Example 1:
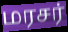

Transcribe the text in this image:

மரசர்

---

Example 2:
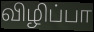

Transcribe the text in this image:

விழிப்பா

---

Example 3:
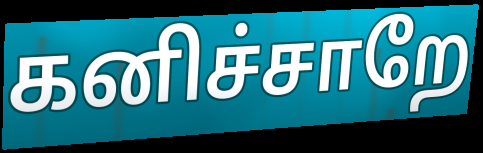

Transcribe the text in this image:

கனிச்சாறே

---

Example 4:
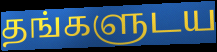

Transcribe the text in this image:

தங்களுடய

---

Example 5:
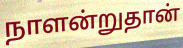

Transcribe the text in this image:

நாளன்றுதான்